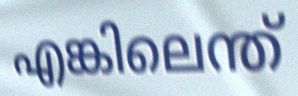
എങ്കിലെന്ത്